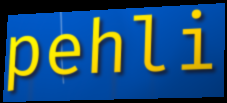
pehli